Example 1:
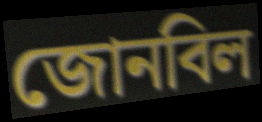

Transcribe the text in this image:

জোনবিল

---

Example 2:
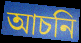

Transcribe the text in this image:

আচনি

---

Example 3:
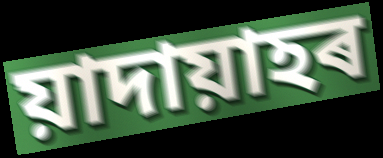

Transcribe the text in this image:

য়াদায়াহৰ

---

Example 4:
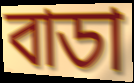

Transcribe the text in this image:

বাডা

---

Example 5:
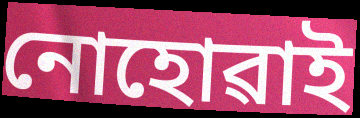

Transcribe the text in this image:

নোহোৱাই